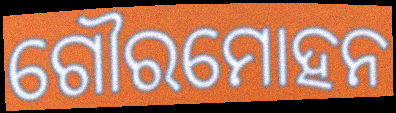
ଗୌରମୋହନ